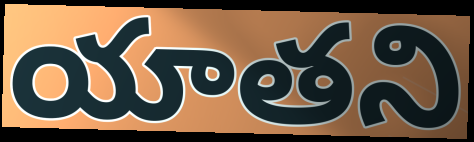
యాతని